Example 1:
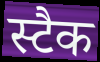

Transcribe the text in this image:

स्टैक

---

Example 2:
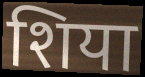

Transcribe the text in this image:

शिया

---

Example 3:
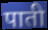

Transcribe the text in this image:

पाती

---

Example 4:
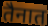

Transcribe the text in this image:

तैनात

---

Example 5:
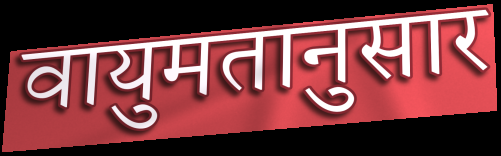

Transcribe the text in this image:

वायुमतानुसार